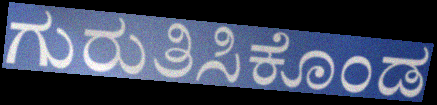
ಗುರುತಿಸಿಕೊಂಡ